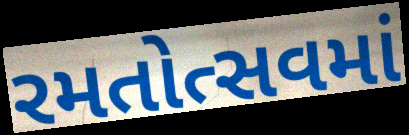
રમતોત્સવમાં